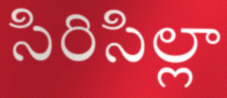
సిరిసిల్లా